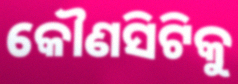
କୌଣସିଟିକୁ